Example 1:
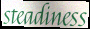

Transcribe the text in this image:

steadiness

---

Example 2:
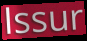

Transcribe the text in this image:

Issur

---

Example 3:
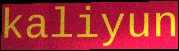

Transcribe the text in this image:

kaliyun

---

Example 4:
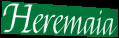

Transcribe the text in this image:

Heremaia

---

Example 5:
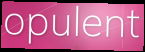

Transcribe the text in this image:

opulent